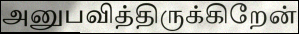
அனுபவித்திருக்கிறேன்